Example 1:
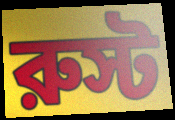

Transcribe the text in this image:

রুস্ট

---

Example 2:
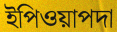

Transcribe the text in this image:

ইপিওয়াপদা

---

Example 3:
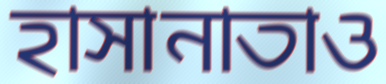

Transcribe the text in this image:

হাসানাতাও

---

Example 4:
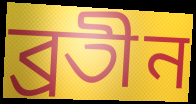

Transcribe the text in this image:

ব্রতীন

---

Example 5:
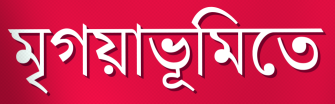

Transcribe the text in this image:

মৃগয়াভূমিতে